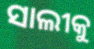
ସାଲୀକୁ